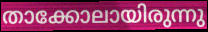
താക്കോലായിരുന്നു